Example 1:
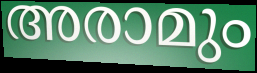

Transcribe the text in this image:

അരാമും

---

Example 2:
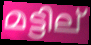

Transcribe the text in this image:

മട്ടില്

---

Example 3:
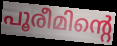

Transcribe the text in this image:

പൂരീമിന്റെ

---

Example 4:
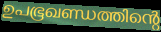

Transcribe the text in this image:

ഉപഭൂഖണ്ഡത്തിന്റെ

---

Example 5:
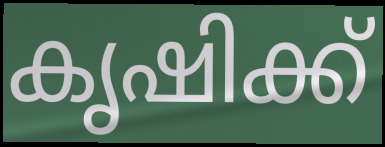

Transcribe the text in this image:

കൃഷിക്ക്